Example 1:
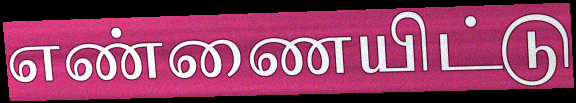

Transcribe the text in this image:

எண்ணையிட்டு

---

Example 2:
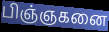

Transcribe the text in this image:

பிஞ்ஞகனை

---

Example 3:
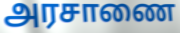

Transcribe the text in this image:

அரசாணை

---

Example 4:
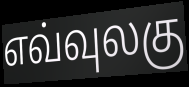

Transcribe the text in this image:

எவ்வுலகு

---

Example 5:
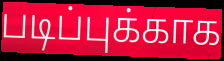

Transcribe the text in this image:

படிப்புக்காக